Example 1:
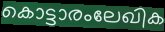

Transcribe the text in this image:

കൊട്ടാരംലേഖിക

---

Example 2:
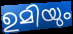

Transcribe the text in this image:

ഉമിയും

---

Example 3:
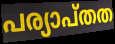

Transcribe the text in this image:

പര്യാപ്തത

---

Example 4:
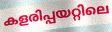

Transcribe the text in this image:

കളരിപ്പയറ്റിലെ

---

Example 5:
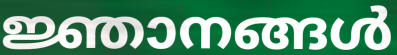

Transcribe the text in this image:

ജ്ഞാനങ്ങൾ